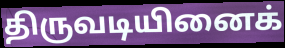
திருவடியினைக்